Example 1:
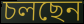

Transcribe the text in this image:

চলছেন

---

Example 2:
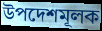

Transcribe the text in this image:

উপদেশমূলক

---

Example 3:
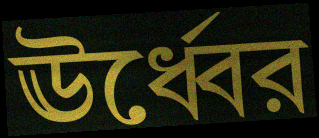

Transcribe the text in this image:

ঊর্ধ্বের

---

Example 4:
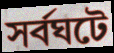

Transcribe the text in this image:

সর্বঘটে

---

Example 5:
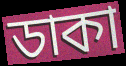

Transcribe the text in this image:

ডাকা